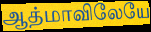
ஆத்மாவிலேயே